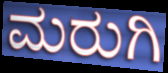
ಮರುಗಿ